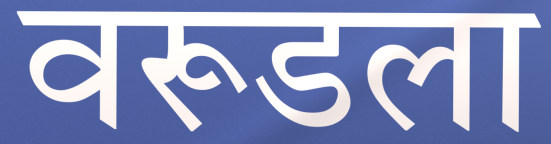
वरूडला